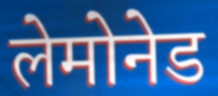
लेमोनेड